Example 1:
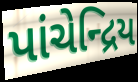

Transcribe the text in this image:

પાંચેન્દ્રિય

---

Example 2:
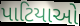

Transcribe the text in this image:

પાટિયાઓ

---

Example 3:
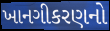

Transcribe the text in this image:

ખાનગીકરણનો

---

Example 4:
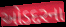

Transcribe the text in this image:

ઓડદરના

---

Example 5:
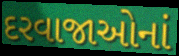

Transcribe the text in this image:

દરવાજાઓનાં